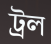
ট্রল